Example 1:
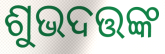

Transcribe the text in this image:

ଶୁଭଦତ୍ତଙ୍କ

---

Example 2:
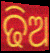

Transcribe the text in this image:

ଢିଅ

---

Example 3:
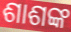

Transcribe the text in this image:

ଶାଶଙ୍କ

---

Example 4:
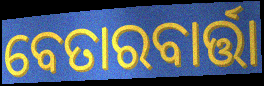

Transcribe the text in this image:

ବେତାରବାର୍ତ୍ତା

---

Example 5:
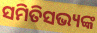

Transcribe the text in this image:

ସମିତିସଭ୍ୟଙ୍କ